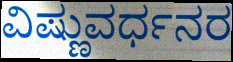
ವಿಷ್ಣುವರ್ಧನರ